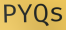
PYQs